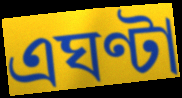
এঘণ্টা